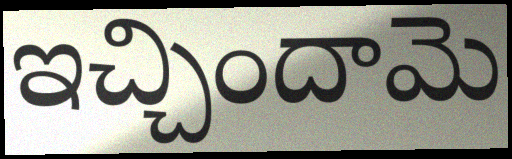
ఇచ్చిందామె